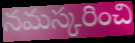
నమస్కరించి